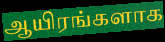
ஆயிரங்களாக